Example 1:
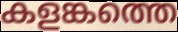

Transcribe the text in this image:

കളങ്കത്തെ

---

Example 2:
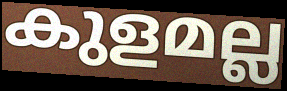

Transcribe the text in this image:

കുളമല്ല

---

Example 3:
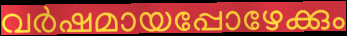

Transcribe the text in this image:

വർഷമായപ്പോഴേക്കും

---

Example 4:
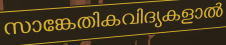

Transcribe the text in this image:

സാങ്കേതികവിദ്യകളാൽ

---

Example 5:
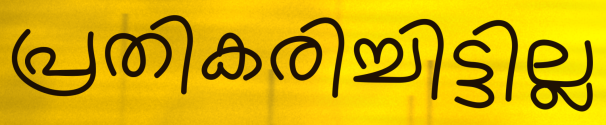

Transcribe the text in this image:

പ്രതികരിച്ചിട്ടില്ല